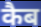
कैब